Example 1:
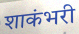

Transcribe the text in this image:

शाकंभरी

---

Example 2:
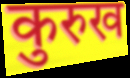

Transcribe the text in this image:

कुरुख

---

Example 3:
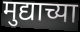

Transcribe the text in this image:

मुद्याच्या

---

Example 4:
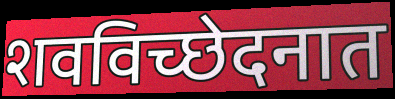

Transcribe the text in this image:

शवविच्छेदनात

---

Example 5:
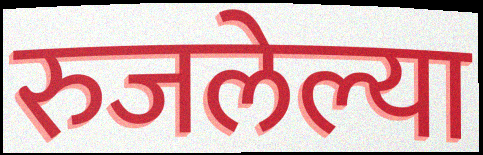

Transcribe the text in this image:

रुजलेल्या